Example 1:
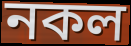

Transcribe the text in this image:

নকল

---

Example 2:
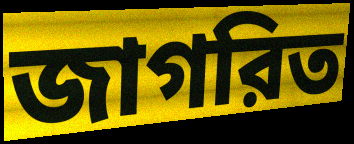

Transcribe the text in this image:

জাগরিত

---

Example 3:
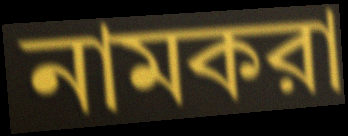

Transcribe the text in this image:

নামকরা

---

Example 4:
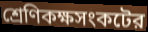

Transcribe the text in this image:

শ্রেণিকক্ষসংকটের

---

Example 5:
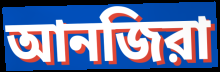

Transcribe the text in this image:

আনজিরা